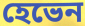
হেভেন